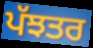
ਪੱਝਤਰ